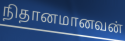
நிதானமானவன்